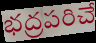
భద్రపరిచే